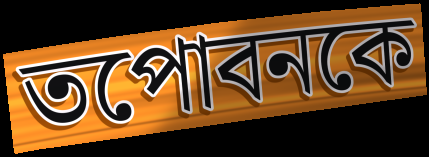
তপোবনকে